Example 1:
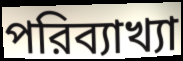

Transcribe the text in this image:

পরিব্যাখ্যা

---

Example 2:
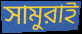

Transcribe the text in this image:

সামুরাই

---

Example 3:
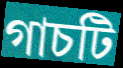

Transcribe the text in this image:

গাচটি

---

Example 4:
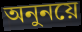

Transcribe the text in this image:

অনুনয়ে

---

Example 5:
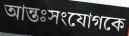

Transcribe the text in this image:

আন্তঃসংযোগকে